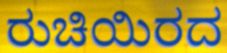
ರುಚಿಯಿರದ